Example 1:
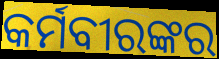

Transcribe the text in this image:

କର୍ମବୀରଙ୍କର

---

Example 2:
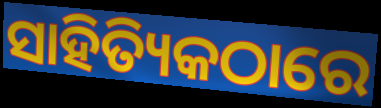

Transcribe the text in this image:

ସାହିତ୍ୟିକଠାରେ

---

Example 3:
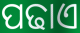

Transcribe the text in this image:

ପଢାଏ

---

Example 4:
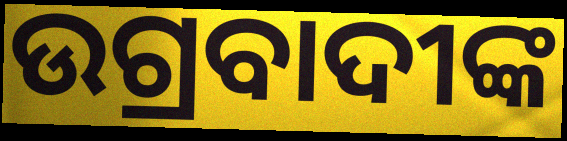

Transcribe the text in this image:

ଉଗ୍ରବାଦୀଙ୍କ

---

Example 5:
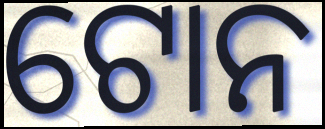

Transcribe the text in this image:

ଟୋନ